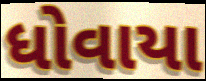
ધોવાયા